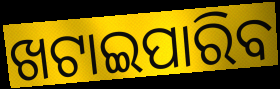
ଖଟାଇପାରିବ